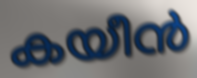
കയീൻ